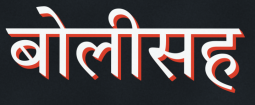
बोलीसह